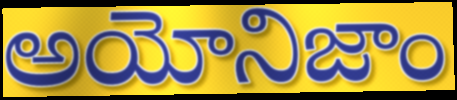
అయోనిజాం